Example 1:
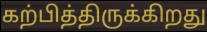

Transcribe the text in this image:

கற்பித்திருக்கிறது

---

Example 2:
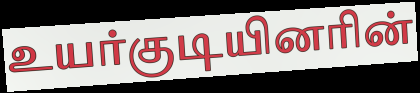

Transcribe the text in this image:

உயர்குடியினரின்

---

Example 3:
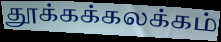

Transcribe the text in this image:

தூக்கக்கலக்கம்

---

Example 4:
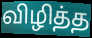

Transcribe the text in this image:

விழித்த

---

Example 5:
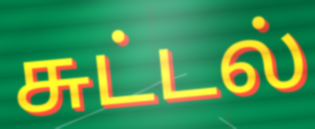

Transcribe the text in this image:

சுட்டல்